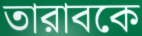
তারাবকে